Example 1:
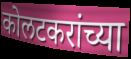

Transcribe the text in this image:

कोलटकरांच्या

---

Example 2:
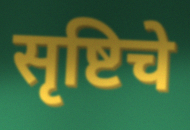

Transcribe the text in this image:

सृष्टिचे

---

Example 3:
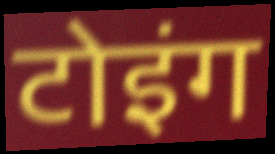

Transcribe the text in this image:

टोइंग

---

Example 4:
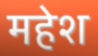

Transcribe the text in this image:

महेश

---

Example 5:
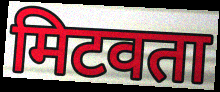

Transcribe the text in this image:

मिटवता